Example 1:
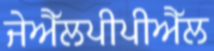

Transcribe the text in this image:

ਜੇਐੱਲਪੀਪੀਐੱਲ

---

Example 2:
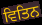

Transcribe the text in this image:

ਵਿਤਿਨ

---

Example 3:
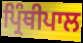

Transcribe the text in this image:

ਪ੍ਰਿੰਥੀਪਾਲ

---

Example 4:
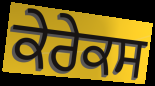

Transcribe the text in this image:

ਕੇਰੇਕਸ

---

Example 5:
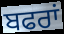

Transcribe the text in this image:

ਬਫਰਾਂ